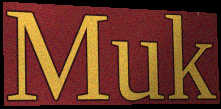
Muk